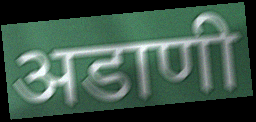
अडाणी